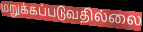
மறுக்கப்படுவதில்லை